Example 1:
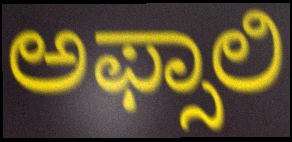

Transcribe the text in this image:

ಅಫ್ಸಾಲಿ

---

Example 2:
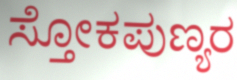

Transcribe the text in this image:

ಸ್ತೋಕಪುಣ್ಯರ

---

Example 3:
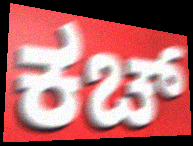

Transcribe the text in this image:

ಕಚ್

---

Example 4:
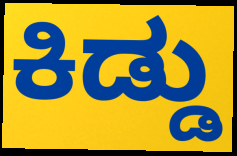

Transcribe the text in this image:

ಕಿಡ್ಡು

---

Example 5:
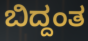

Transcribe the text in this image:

ಬಿದ್ದಂತ